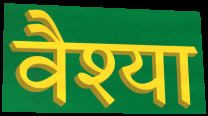
वैश्या